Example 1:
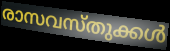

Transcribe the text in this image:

രാസവസ്തുക്കൾ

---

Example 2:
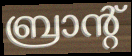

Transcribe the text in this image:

ബ്രാന്റ്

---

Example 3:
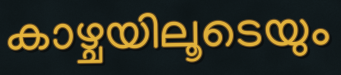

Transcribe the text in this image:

കാഴ്ചയിലൂടെയും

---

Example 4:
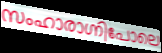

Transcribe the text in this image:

സംഹാരാഗ്നിപോലെ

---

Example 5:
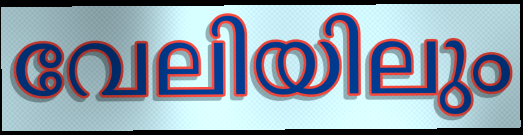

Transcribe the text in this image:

വേലിയിലും